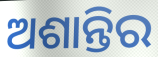
ଅଶାନ୍ତିର